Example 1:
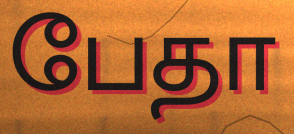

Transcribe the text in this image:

பேதா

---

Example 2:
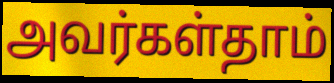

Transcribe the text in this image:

அவர்கள்தாம்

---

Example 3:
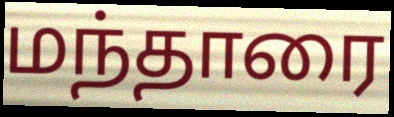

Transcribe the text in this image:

மந்தாரை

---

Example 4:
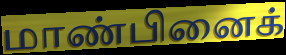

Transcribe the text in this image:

மாண்பினைக்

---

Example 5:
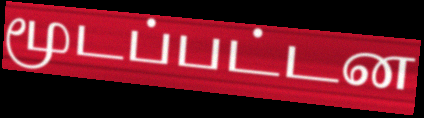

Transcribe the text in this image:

மூடப்பட்டன